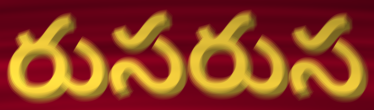
రుసరుస